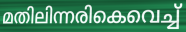
മതിലിന്നരികെവെച്ച്